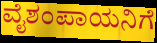
ವೈಶಂಪಾಯನಿಗೆ